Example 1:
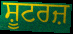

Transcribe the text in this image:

ਸ਼ੂਟਰਜ਼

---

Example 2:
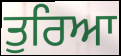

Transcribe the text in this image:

ਤੁਰਿਆ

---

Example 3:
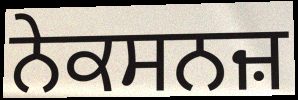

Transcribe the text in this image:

ਨੇਕਸਨਜ਼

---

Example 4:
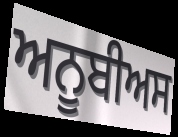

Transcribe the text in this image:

ਅਨੂਬੀਅਸ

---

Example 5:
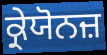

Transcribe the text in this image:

ਕ੍ਰੇਯੋਨਜ਼